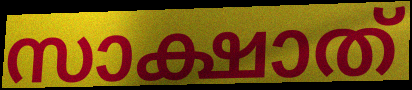
സാക്ഷാത്